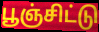
பூஞ்சிட்டு